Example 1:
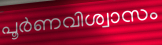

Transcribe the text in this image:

പൂർണവിശ്വാസം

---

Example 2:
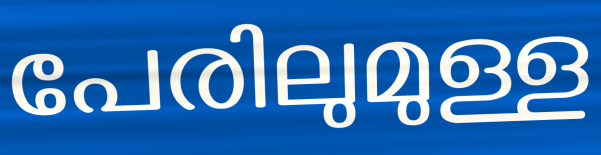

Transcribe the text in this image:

പേരിലുമുള്ള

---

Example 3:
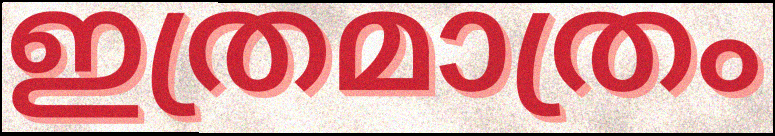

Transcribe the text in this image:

ഇത്രമാത്രം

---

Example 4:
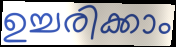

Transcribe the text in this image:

ഉച്ചരിക്കാം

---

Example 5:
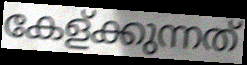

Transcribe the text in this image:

കേള്ക്കുന്നത്